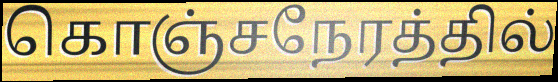
கொஞ்சநேரத்தில்